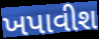
ખપાવીશ